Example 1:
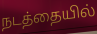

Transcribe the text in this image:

நடத்தையில்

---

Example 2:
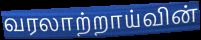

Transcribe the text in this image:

வரலாற்றாய்வின்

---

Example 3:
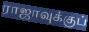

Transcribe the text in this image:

ராஜாவுக்குப்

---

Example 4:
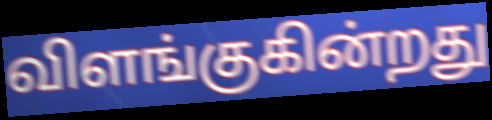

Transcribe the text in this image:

விளங்குகின்றது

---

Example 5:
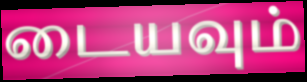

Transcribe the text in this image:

டையவும்